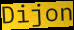
Dijon